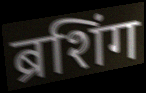
ब्रशिंग